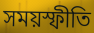
সময়স্ফীতি